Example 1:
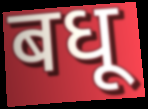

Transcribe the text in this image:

बधू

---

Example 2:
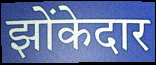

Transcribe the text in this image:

झोंकेदार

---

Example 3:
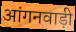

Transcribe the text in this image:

आंगनवाड़ी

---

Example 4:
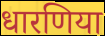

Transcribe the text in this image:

धारणिया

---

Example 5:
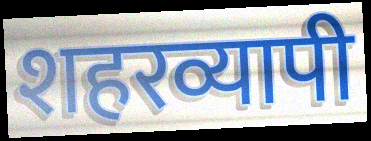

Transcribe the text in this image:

शहरव्यापी